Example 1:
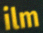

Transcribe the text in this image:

ilm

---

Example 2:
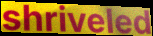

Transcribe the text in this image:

shriveled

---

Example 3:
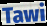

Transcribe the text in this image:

Tawi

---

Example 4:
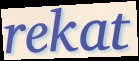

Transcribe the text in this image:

rekat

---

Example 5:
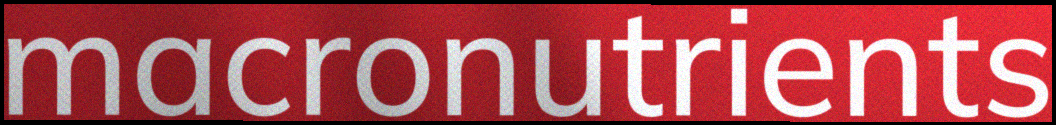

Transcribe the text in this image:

macronutrients